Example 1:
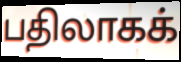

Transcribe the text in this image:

பதிலாகக்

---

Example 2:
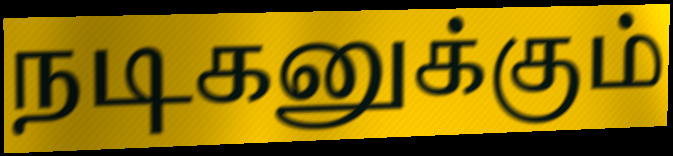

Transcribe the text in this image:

நடிகனுக்கும்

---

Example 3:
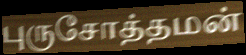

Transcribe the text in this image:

புருசோத்தமன்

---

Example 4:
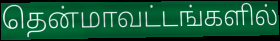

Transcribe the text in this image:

தென்மாவட்டங்களில்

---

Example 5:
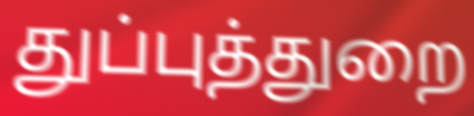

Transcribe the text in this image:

துப்புத்துறை